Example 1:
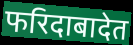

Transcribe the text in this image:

फरिदाबादेत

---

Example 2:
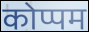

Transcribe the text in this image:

कोप्पम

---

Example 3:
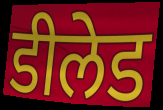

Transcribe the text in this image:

डीलेड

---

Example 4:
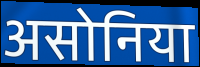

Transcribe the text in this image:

असोनिया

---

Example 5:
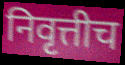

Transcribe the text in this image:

निवृत्तीच